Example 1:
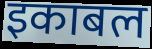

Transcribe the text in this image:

इकाबल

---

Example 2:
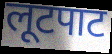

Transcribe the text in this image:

लूटपाट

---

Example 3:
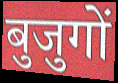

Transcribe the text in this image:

बुजुगों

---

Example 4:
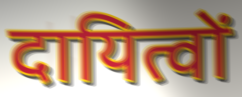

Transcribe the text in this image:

दायित्वों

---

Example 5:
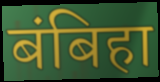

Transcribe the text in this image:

बंबिहा